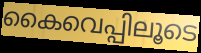
കൈവെപ്പിലൂടെ